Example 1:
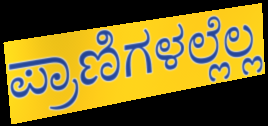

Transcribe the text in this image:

ಪ್ರಾಣಿಗಳಲ್ಲೆಲ್ಲ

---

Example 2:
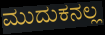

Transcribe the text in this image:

ಮುದುಕನಲ್ಲ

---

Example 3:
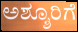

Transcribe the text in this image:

ಅಶ್ಶೂರಿಗೆ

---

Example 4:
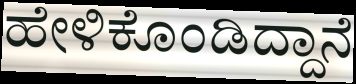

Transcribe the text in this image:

ಹೇಳಿಕೊಂಡಿದ್ದಾನೆ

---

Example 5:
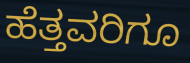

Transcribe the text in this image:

ಹೆತ್ತವರಿಗೂ